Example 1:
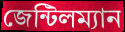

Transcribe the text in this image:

জেন্টিলম্যান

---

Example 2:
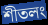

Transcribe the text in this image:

শীতলং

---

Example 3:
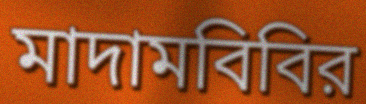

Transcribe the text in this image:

মাদামবিবির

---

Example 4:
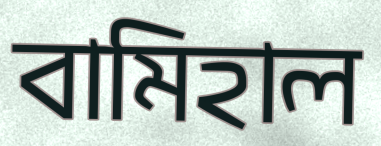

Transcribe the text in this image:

বামিহাল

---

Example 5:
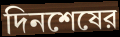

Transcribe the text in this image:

দিনশেষের